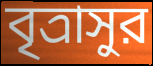
বৃত্রাসুর